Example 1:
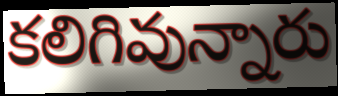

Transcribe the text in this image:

కలిగివున్నారు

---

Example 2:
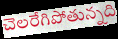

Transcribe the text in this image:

చెలరేగిపోతున్నది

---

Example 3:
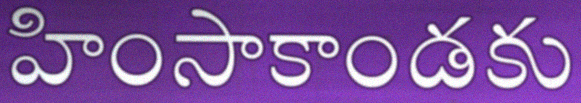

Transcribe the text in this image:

హింసాకాండకు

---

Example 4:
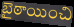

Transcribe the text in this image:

బైఠాయించి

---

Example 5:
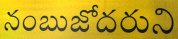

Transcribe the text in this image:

నంబుజోదరుని